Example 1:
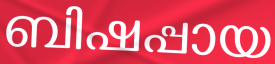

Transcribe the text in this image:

ബിഷപ്പായ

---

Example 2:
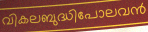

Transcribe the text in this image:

വികലബുദ്ധിപോലവൻ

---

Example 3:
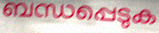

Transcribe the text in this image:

ബന്ധപ്പെടുക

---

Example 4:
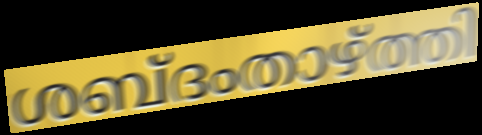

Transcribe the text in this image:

ശബ്ദംതാഴ്ത്തി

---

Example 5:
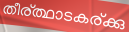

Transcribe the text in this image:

തീര്ത്ഥാടകര്ക്കു